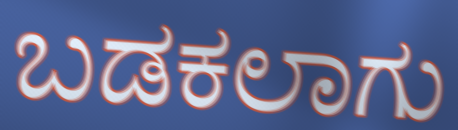
ಬಡಕಲಾಗು